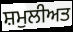
ਸ਼ਮੁਲੀਅਤ